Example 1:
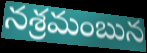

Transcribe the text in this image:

నశ్రమంబున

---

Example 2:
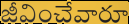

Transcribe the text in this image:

జీవించేవారూ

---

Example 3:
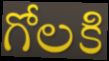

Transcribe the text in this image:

గోలకి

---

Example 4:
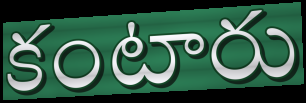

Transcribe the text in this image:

కంటారు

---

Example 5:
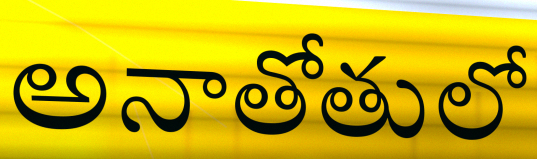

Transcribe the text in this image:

అనాతోతులో